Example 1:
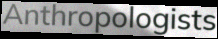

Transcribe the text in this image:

Anthropologists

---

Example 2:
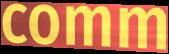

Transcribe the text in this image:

comm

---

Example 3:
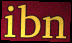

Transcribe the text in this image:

ibn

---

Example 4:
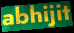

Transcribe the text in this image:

abhijit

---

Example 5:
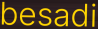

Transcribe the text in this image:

besadi